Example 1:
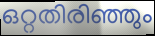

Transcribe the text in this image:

ഒറ്റതിരിഞ്ഞും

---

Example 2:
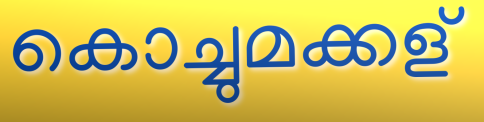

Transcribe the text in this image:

കൊച്ചുമക്കള്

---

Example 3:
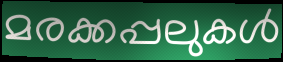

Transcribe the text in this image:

മരക്കപ്പലുകൾ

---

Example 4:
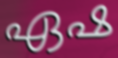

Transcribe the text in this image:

ഏഷ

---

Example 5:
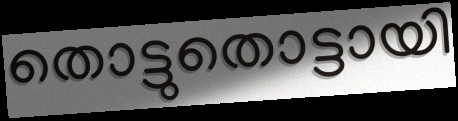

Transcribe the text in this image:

തൊട്ടുതൊട്ടായി